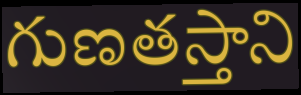
గుణతస్తాని